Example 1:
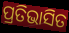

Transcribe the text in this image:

ପ୍ରତିଭାସିତ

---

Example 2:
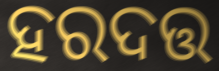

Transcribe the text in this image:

ହରଦତ୍ତ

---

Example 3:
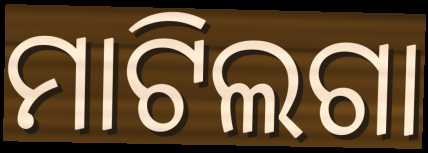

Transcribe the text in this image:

ମାଟିଲଗା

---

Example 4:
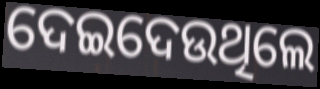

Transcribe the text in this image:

ଦେଇଦେଉଥିଲେ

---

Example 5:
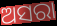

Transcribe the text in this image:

ଅସରା